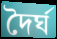
দৈৰ্ঘ